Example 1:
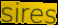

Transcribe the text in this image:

sires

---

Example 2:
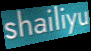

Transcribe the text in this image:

shailiyu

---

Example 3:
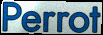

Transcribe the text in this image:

Perrot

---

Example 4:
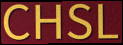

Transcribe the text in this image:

CHSL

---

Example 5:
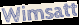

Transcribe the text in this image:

Wimsatt